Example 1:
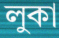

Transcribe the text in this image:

লুকা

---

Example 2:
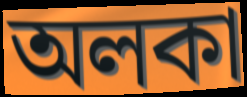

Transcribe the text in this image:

অলকা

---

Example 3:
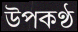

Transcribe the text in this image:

উপকণ্ঠ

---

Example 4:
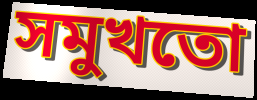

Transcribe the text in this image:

সমুখতো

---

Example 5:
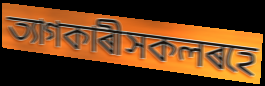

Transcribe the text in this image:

ত্যাগকাৰীসকলৰহে